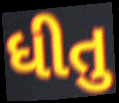
ધીતુ